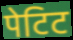
पेटिट